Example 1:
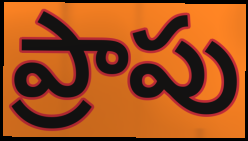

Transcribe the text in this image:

ప్రాపు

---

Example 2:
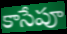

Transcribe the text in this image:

కాసేపూ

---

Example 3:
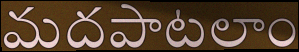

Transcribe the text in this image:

మదపాటలాం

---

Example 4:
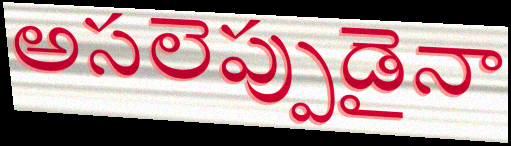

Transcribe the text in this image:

అసలెప్పుడైనా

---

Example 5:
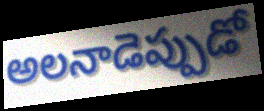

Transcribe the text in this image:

అలనాడెప్పుడో